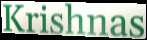
Krishnas